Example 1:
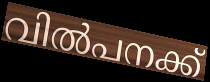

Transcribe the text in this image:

വിൽപനക്ക്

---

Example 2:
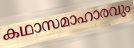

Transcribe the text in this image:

കഥാസമാഹാരവും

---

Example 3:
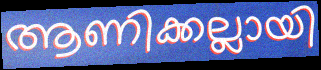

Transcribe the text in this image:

ആണിക്കല്ലായി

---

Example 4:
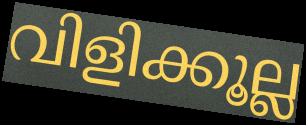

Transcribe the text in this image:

വിളിക്കൂല്ല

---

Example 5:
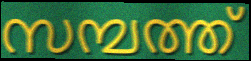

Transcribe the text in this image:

സമ്പത്ത്